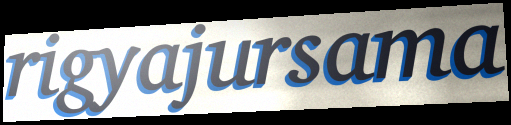
rigyajursama